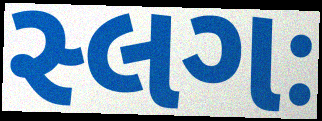
સ્લગઃ